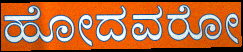
ಹೋದವರೋ